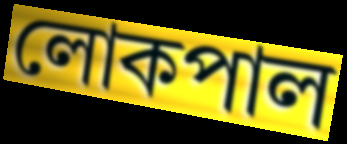
লোকপাল